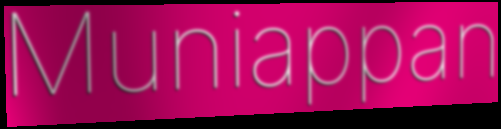
Muniappan